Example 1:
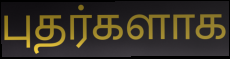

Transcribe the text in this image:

புதர்களாக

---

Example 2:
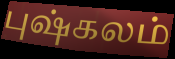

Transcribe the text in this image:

புஷ்கலம்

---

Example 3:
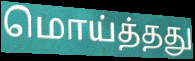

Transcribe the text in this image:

மொய்த்தது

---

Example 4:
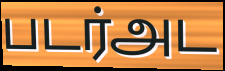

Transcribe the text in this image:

படர்அட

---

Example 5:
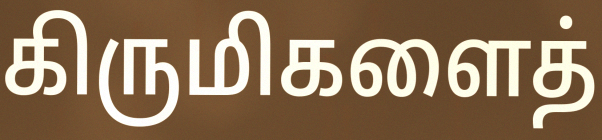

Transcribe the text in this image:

கிருமிகளைத்